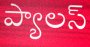
ప్యాలస్